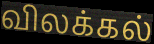
விலக்கல்